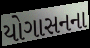
યોગાસનના